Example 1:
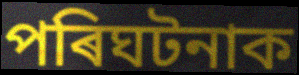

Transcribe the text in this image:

পৰিঘটনাক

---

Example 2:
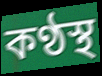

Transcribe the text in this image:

কণ্ঠস্থ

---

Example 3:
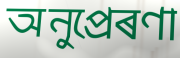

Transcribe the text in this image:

অনুপ্ৰেৰণা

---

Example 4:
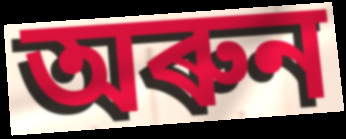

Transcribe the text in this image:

অৰুন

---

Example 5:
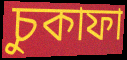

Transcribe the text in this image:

চুকাফা